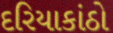
દરિયાકાંઠો